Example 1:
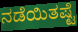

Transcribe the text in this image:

ನಡೆಯಿತಷ್ಟೆ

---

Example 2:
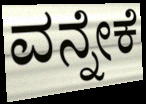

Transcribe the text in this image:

ವನ್ನೇಕೆ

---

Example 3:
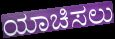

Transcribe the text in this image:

ಯಾಚಿಸಲು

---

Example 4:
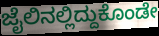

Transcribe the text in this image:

ಜೈಲಿನಲ್ಲಿದ್ದುಕೊಂಡೇ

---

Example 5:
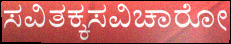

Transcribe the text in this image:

ಸವಿತಕ್ಕಸವಿಚಾರೋ